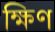
ক্ষিণ